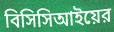
বিসিসিআইয়ের